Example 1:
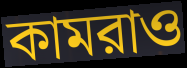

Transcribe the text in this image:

কামরাও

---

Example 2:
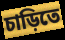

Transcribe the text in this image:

চাড়িতে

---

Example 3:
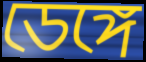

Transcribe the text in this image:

ডেঙ্গে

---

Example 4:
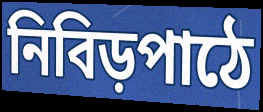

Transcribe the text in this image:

নিবিড়পাঠে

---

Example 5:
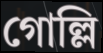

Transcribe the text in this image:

গোল্লি